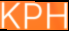
KPH